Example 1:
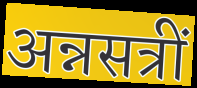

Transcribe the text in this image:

अन्नसत्रीं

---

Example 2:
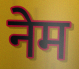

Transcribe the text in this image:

नेम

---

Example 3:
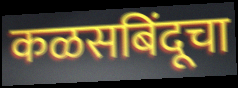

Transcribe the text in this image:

कळसबिंदूचा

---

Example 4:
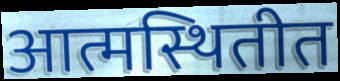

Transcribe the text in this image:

आत्मस्थितीत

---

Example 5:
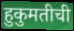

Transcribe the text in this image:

हुकुमतीची